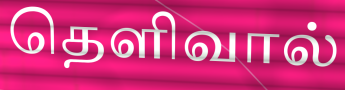
தெளிவால்